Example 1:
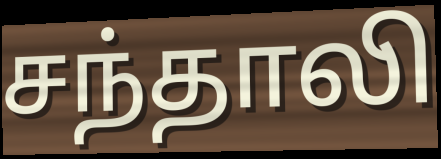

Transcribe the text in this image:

சந்தாலி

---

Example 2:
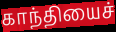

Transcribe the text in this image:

காந்தியைச்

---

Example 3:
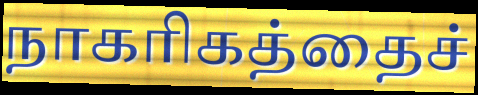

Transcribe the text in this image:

நாகரிகத்தைச்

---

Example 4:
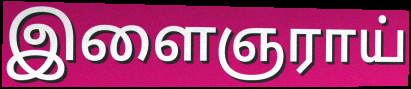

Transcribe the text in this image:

இளைஞராய்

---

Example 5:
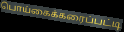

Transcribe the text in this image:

பொய்கைக்கரைப்பட்டி